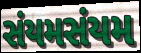
સંયમસંયમ